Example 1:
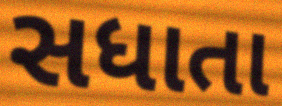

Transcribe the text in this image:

સધાતા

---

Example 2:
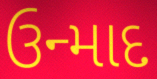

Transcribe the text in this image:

ઉન્માદ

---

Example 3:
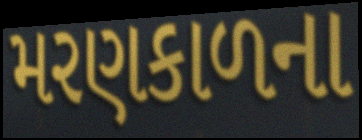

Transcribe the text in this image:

મરણકાળના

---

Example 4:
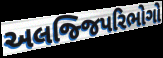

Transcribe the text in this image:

અલજ્જિપરિભોગો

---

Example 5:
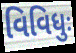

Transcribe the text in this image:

વિવિધુઃ